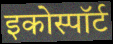
इकोस्पॉर्ट